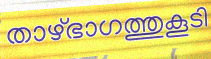
താഴ്ഭാഗത്തുകൂടി